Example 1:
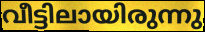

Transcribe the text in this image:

വീട്ടിലായിരുന്നു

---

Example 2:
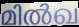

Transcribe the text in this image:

മിൽഖ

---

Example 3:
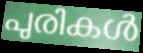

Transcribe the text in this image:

പുരികൾ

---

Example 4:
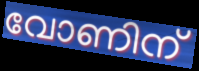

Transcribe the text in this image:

വോണിന്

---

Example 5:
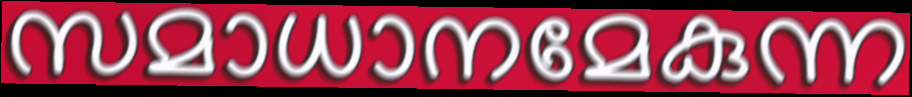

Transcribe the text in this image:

സമാധാനമേകുന്ന